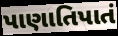
પાણાતિપાતં